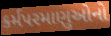
કર્મપરમાણુઓનો